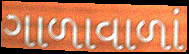
ગાળાવાળાં